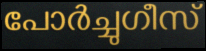
പോർച്ചുഗീസ്